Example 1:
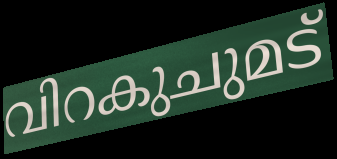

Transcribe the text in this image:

വിറകുചുമട്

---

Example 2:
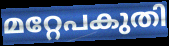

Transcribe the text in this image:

മറ്റേപകുതി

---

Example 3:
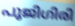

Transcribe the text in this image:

പൂജിഗിരി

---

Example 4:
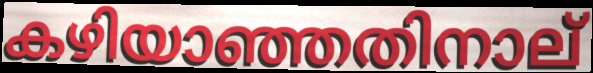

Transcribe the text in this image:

കഴിയാഞ്ഞതിനാല്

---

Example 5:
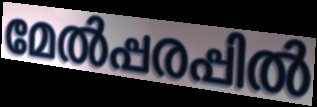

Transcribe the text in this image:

മേൽപ്പരപ്പിൽ